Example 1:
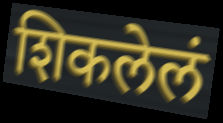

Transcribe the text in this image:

शिकलेलं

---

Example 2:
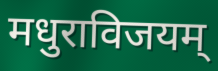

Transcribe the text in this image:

मधुराविजयम्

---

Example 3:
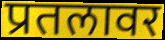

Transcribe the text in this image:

प्रतलावर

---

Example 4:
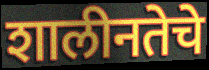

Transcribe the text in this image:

शालीनतेचे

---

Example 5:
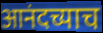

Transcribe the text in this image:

आनंदच्याच